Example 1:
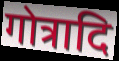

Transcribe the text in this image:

गोत्रादि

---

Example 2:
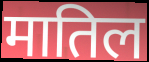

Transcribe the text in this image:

मातिल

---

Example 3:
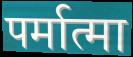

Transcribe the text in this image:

पर्मात्मा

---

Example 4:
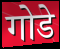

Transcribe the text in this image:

गोडे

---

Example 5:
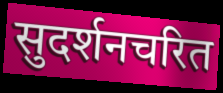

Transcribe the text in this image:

सुदर्शनचरित